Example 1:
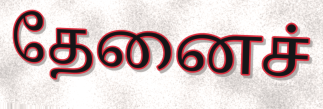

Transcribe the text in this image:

தேனைச்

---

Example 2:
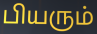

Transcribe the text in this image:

பியரும்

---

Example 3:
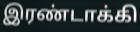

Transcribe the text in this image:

இரண்டாக்கி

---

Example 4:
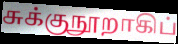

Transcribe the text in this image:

சுக்குநூறாகிப்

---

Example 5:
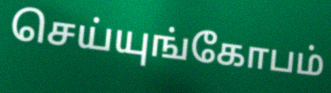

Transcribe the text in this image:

செய்யுங்கோபம்